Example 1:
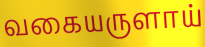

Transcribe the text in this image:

வகையருளாய்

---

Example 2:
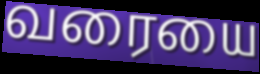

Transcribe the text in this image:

வரையை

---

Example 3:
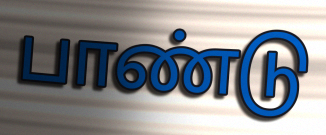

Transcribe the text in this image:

பாண்டு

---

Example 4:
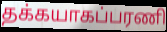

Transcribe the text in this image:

தக்கயாகப்பரணி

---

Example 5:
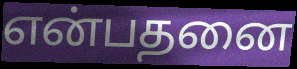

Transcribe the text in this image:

என்பதனை